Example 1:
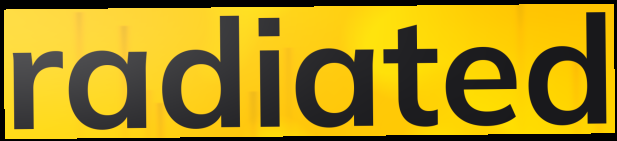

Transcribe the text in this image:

radiated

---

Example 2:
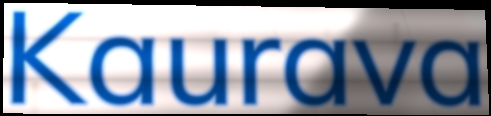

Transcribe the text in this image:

Kaurava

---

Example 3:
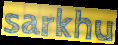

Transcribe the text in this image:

sarkhu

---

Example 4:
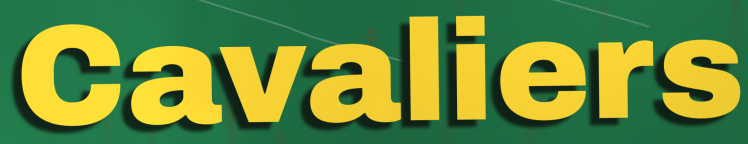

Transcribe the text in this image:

Cavaliers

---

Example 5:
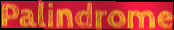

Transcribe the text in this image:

Palindrome